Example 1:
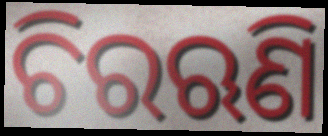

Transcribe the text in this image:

ଚିରଋଣି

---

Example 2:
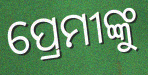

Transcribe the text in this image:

ପ୍ରେମୀଙ୍କୁ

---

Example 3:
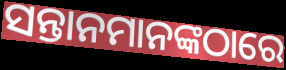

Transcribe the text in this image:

ସନ୍ତାନମାନଙ୍କଠାରେ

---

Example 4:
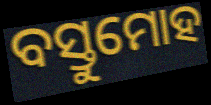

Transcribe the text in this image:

ବସ୍ତୁମୋହ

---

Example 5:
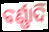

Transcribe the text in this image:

ବର୍ଣ୍ଣାଦି